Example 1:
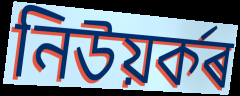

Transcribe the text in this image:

নিউয়ৰ্কৰ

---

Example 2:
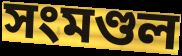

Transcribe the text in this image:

সংমণ্ডল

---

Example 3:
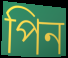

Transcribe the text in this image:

পিন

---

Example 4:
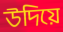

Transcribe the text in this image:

উদিয়ে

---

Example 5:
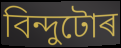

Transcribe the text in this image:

বিন্দুটোৰ